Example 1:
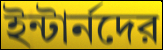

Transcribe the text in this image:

ইন্টার্নদের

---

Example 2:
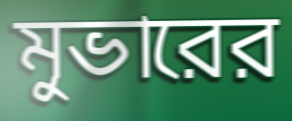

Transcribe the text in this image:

মুভারের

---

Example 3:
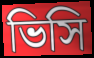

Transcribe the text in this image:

ভিসি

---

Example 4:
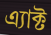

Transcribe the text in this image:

এ্যাক্ট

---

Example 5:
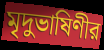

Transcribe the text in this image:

মৃদুভাষিণীর